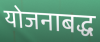
योजनाबद्ध